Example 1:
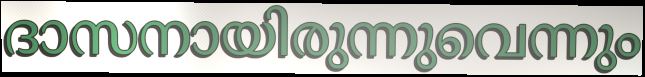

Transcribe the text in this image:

ദാസനായിരുന്നുവെന്നും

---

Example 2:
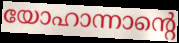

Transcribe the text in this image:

യോഹാന്നാന്റെ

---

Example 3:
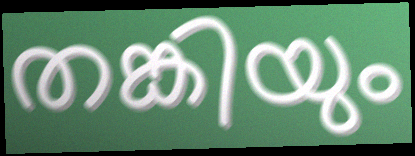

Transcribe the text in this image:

തങ്കിയും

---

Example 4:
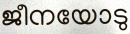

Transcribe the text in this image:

ജീനയോടു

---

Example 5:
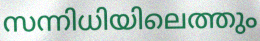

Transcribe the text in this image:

സന്നിധിയിലെത്തും